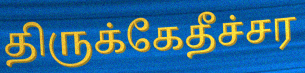
திருக்கேதீச்சர